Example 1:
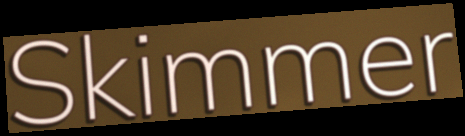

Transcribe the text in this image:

Skimmer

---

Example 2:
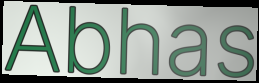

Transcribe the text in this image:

Abhas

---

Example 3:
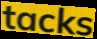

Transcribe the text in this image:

tacks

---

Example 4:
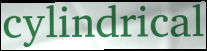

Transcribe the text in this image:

cylindrical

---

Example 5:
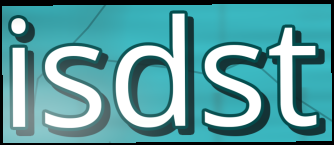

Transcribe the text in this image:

isdst